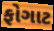
ફોગાટ